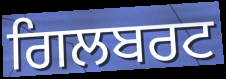
ਗਿਲਬਰਟ